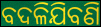
ବଦଳିଯିବଣି